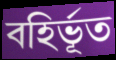
বহিৰ্ভূত